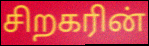
சிறகரின்